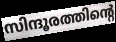
സിന്ദൂരത്തിന്റെ